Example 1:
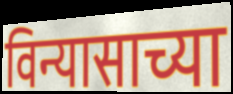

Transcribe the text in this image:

विन्यासाच्या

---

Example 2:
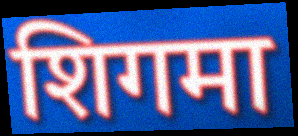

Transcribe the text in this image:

शिगमा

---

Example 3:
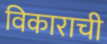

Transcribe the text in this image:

विकाराची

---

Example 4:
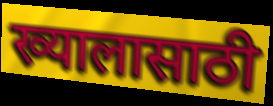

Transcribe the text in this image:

ख्यालासाठी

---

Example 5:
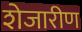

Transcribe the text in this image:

शेजारीण